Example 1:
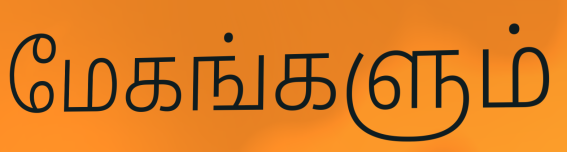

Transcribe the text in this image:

மேகங்களும்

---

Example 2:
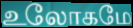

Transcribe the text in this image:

உலோகமே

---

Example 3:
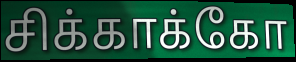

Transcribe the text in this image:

சிக்காக்கோ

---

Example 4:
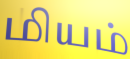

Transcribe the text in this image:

மியம்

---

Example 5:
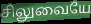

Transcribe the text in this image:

சிலுவையே